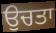
ਉਚਤਾ